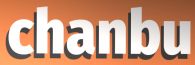
chanbu